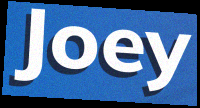
Joey